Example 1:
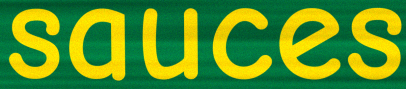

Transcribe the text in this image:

sauces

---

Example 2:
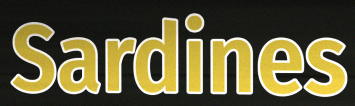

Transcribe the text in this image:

Sardines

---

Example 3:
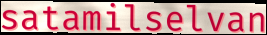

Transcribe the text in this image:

satamilselvan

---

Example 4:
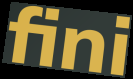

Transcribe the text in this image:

fini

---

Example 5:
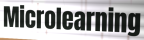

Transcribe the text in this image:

Microlearning